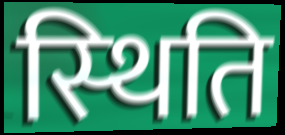
स्‍थिति